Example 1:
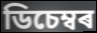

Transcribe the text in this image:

ডিচেম্বৰ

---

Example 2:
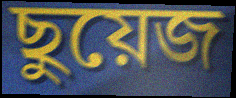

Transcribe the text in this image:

ছুয়েজ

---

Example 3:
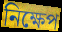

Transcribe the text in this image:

নিক্ষেপ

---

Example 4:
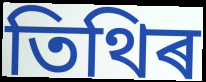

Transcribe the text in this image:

তিথিৰ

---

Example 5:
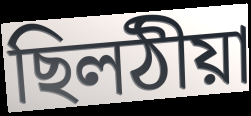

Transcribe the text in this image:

ছিলঠীয়া